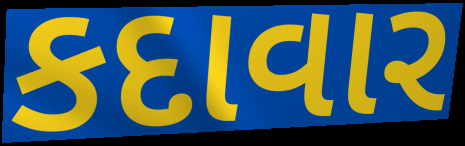
કદાવાર